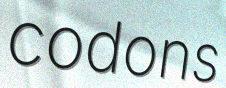
codons